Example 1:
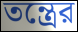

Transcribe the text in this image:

তন্ত্রের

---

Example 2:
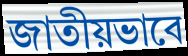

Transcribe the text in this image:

জাতীয়ভাবে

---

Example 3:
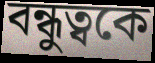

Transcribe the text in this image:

বন্ধুত্বকে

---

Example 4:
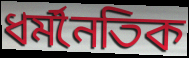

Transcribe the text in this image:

ধর্মনৈতিক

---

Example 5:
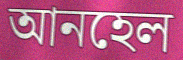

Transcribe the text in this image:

আনহেল